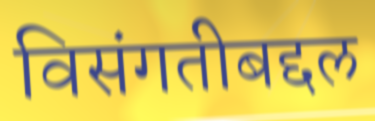
विसंगतीबद्दल